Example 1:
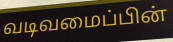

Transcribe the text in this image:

வடிவமைப்பின்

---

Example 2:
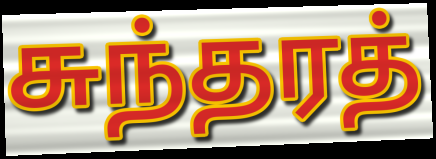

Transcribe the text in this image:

சுந்தரத்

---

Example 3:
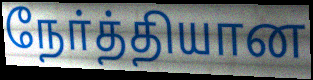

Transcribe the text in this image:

நேர்த்தியான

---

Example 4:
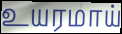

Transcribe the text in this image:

உயரமாய்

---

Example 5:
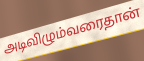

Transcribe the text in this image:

அடிவிழும்வரைதான்